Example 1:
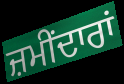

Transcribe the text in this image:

ਜ਼ਮੀਂਦਾਰਾਂ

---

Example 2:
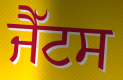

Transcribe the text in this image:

ਜੈੱਟਸ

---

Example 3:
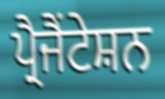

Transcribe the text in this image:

ਪ੍ਰੈਜੈਂਟੇਸ਼ਨ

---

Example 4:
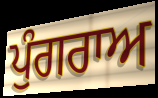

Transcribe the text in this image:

ਪੁੰਗਰਾਅ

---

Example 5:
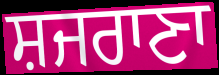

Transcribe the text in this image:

ਸ਼ਜਰਾਣਾ